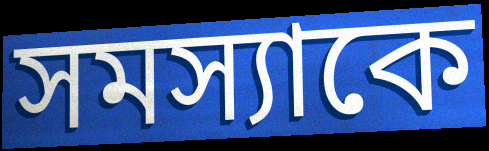
সমস্যাকে